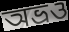
অভ্রও